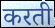
करती